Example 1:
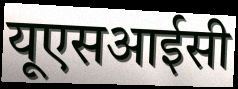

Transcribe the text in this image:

यूएसआईसी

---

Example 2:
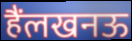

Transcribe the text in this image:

हैंलखनऊ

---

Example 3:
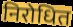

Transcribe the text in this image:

निरोधित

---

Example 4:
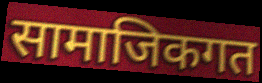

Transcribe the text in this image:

सामाजिकगत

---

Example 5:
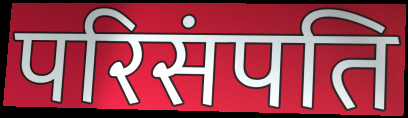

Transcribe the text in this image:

परिसंपति